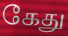
கேது